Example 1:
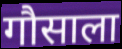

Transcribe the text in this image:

गौसाला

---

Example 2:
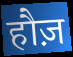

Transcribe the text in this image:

हौज़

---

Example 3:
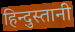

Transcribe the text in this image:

हिन्‍दुस्‍तानी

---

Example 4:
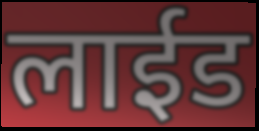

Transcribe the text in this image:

लाईड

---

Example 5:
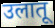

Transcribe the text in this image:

उलातू